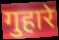
गुहारे